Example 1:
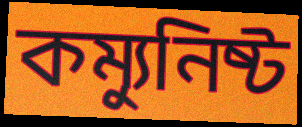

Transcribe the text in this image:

কম্যুনিষ্ট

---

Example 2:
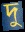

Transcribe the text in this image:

দু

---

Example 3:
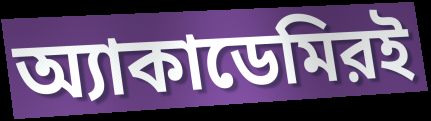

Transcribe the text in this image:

অ্যাকাডেমিরই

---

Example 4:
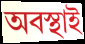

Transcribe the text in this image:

অবস্থাই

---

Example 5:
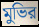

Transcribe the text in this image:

মুভির